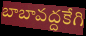
బాబావద్దకేగి